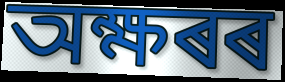
অক্ষৰৰ